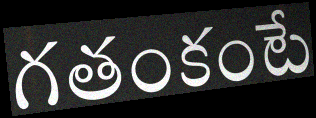
గతంకంటే